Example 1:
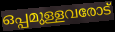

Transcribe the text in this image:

ഒപ്പമുള്ളവരോട്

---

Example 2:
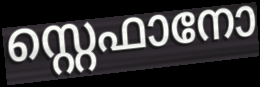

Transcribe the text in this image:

സ്റ്റെഫാനോ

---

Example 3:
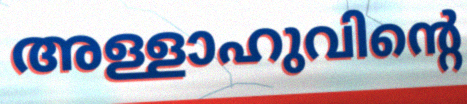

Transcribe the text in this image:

അള്ളാഹുവിന്റെ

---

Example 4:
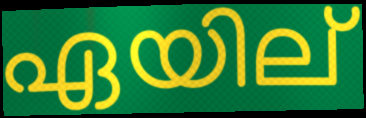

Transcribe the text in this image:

ഏയില്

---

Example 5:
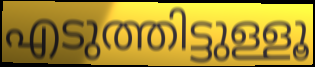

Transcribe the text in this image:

എടുത്തിട്ടുള്ളൂ